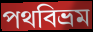
পথবিভ্রম